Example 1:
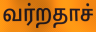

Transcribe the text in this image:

வர்றதாச்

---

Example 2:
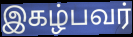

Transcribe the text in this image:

இகழ்பவர்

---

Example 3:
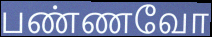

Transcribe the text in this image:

பண்ணவோ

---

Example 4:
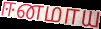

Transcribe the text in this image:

ஈனமாய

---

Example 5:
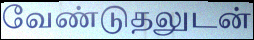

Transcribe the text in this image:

வேண்டுதலுடன்